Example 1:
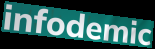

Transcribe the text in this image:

infodemic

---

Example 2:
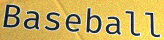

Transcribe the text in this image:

Baseball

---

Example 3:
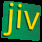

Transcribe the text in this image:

jiv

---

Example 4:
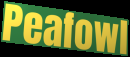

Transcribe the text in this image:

Peafowl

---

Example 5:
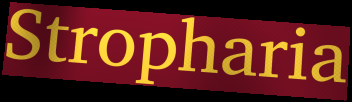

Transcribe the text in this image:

Stropharia